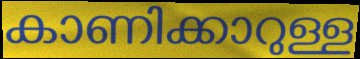
കാണിക്കാറുള്ള